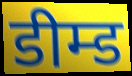
डीम्ड